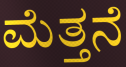
ಮೆತ್ತನೆ